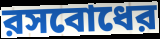
রসবোধের